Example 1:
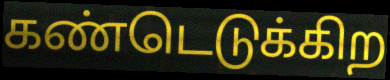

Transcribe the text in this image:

கண்டெடுக்கிற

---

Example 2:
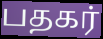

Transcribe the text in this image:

பதகர்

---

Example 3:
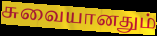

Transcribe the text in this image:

சுவையானதும்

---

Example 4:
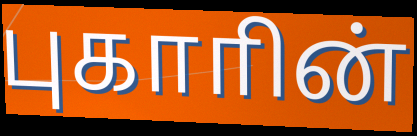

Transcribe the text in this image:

புகாரின்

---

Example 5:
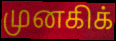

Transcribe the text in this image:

முனகிக்